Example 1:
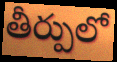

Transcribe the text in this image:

తీర్పులో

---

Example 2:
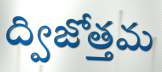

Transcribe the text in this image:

ద్విజోత్తమ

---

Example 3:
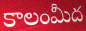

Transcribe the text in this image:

కాలంమీద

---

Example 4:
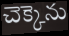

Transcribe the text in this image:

చెక్కెను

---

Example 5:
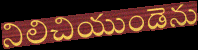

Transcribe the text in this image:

నిలిచియుండెను